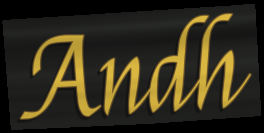
Andh